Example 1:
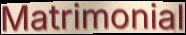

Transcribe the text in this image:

Matrimonial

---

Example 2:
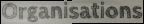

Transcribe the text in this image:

Organisations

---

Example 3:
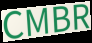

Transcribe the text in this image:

CMBR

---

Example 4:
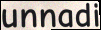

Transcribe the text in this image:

unnadi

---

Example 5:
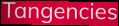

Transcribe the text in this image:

Tangencies